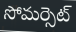
సోమర్సెట్